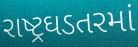
રાષ્ટ્રઘડતરમાં